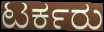
ಟರ್ಕರು